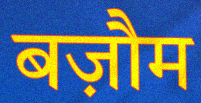
बज़ौम